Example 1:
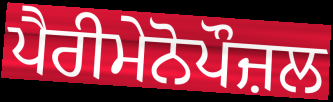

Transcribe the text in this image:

ਪੈਰੀਮੇਨੋਪੌਜ਼ਲ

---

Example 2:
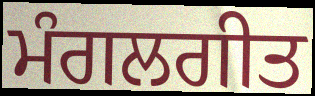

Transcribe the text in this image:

ਮੰਗਲਗੀਤ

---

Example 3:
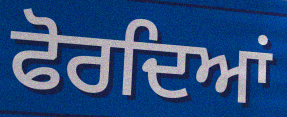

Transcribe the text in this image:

ਫੋਰਦਿਆਂ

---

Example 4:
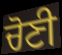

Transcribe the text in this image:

ਚੋਣੀ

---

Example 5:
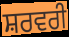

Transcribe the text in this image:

ਸ਼ਰਵਰੀ